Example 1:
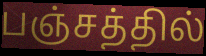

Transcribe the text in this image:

பஞ்சத்தில்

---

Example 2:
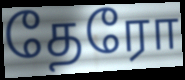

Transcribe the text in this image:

தேரோ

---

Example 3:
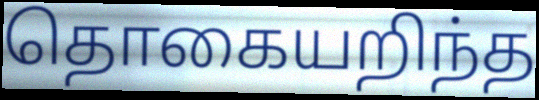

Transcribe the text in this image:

தொகையறிந்த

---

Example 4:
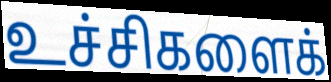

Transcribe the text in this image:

உச்சிகளைக்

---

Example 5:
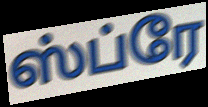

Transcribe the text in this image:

ஸ்ப்ரே